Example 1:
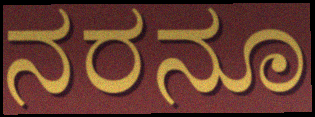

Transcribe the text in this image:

ನರನೂ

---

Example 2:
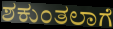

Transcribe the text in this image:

ಶಕುಂತಲಾಗೆ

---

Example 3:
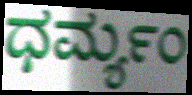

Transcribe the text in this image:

ಧರ್ಮ್ಯಂ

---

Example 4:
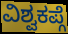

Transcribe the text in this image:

ವಿಶ್ವಕಪ್ಗೆ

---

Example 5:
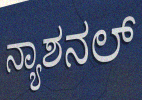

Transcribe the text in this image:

ನ್ಯಾಶನಲ್